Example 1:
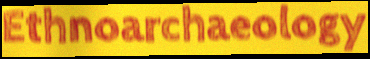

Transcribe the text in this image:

Ethnoarchaeology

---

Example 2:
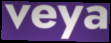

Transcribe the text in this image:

veya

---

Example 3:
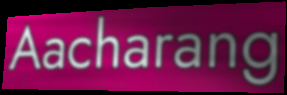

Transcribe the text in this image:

Aacharang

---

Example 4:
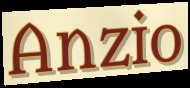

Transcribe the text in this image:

Anzio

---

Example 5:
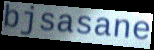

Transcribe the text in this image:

bjsasane